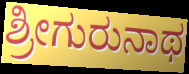
ಶ್ರೀಗುರುನಾಥ